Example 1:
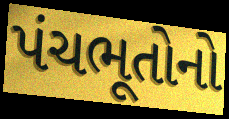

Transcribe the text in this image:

પંચભૂતોનો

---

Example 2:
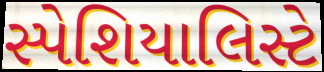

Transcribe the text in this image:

સ્પેશિયાલિસ્ટે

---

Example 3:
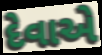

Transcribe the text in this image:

દેવાએ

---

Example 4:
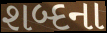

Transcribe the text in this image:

શબ્દના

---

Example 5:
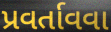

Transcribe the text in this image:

પ્રવર્તાવવા